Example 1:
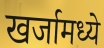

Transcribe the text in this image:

खर्जामध्ये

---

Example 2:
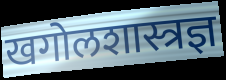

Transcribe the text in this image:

खगोलशास्त्रज्ञ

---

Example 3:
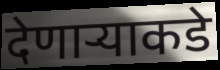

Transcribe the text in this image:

देणाऱ्याकडे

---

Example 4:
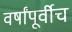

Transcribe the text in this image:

वर्षांपूर्वीच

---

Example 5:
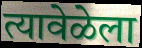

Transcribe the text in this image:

त्यावेळेला